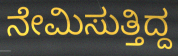
ನೇಮಿಸುತ್ತಿದ್ದ